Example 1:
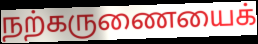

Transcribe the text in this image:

நற்கருணையைக்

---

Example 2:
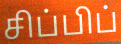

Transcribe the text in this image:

சிப்பிப்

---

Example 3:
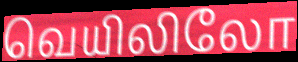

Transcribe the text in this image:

வெயிலிலோ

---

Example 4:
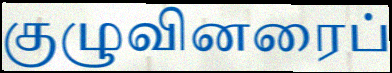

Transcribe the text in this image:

குழுவினரைப்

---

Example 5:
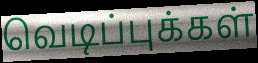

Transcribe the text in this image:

வெடிப்புக்கள்